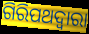
ଗିରିପଥଦ୍ୱାରା